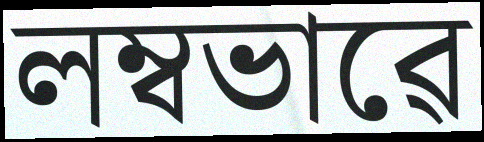
লম্বভাৱে